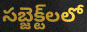
సబ్జెక్ట్‌లలో